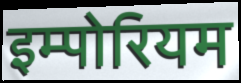
इम्पोरियम